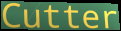
Cutter